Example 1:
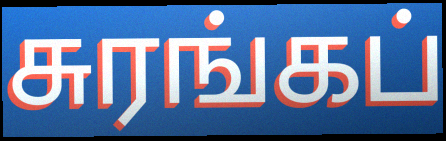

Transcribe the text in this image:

சுரங்கப்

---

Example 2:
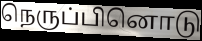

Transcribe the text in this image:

நெருப்பினொடு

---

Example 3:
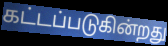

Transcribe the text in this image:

கட்டப்படுகின்றது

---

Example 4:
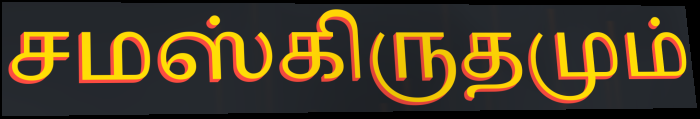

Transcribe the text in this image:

சமஸ்கிருதமும்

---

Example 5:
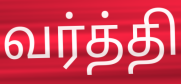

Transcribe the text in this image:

வர்த்தி